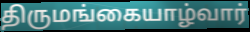
திருமங்கையாழ்வார்